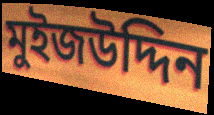
মুইজউদ্দিন